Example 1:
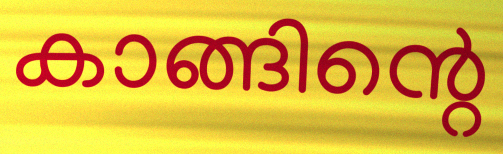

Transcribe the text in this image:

കാങ്ങിന്റെ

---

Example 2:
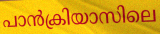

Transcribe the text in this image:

പാൻക്രിയാസിലെ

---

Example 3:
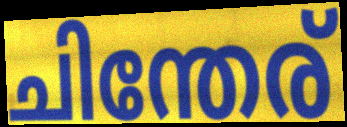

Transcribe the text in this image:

ചിന്തേര്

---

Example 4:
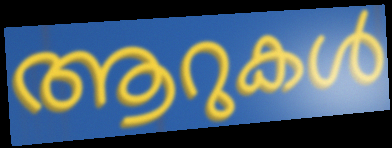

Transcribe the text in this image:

ആറുകൾ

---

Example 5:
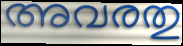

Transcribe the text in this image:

അവരതു